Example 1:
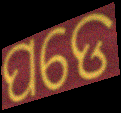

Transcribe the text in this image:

ପଡେ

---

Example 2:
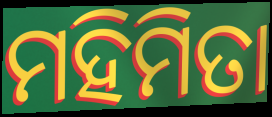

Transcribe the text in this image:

ମହିମିତା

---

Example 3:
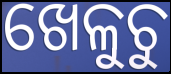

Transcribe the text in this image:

ଖେଳୁଚୁ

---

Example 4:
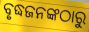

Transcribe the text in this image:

ବୃଦ୍ଧଜନଙ୍କଠାରୁ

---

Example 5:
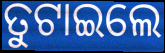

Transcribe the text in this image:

ତୁଟାଇଲେ